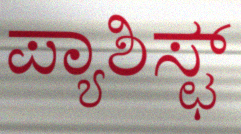
ಪ್ಯಾಶಿಸ್ಟ್